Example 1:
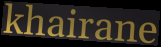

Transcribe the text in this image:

khairane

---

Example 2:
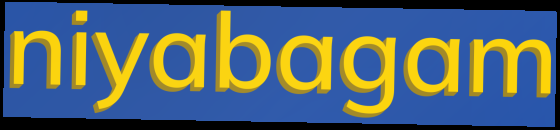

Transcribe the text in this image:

niyabagam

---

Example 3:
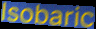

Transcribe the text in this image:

Isobaric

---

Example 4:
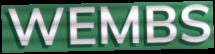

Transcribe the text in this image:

WEMBS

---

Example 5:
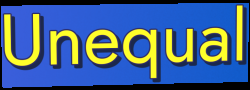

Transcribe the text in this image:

Unequal